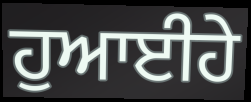
ਹੁਆਈਹੇ